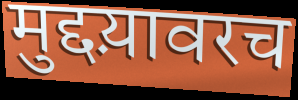
मुद्दय़ावरच